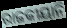
ରାଜକୀୟାନି